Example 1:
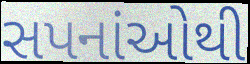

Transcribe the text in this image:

સપનાંઓથી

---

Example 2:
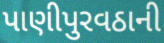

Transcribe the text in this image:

પાણીપુરવઠાની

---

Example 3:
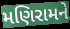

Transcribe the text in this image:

મણિરામને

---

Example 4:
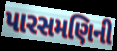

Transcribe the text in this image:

પારસમણિની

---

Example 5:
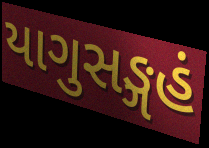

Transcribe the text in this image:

યાગુસઙ્ગહં